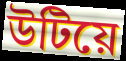
উটিয়ে